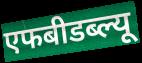
एफबीडब्ल्यू